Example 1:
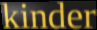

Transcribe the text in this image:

kinder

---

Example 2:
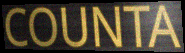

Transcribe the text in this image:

COUNTA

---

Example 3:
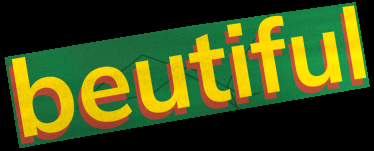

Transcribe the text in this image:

beutiful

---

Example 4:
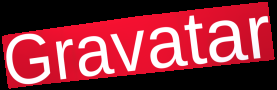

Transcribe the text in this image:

Gravatar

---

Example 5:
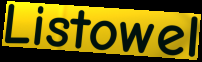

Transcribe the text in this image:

Listowel